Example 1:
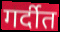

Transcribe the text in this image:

गर्दीत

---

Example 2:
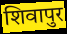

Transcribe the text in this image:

शिवापुर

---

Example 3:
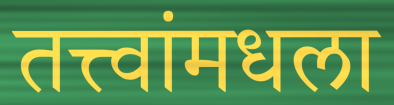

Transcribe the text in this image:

तत्त्वांमधला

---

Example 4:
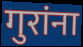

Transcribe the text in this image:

गुरांना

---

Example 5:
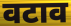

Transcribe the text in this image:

वटाव